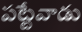
పట్టేవాడు